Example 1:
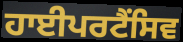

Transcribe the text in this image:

ਹਾਈਪਰਟੈਂਸਿਵ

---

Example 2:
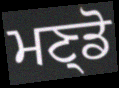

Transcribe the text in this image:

ਮਣ੍ਡੋ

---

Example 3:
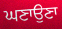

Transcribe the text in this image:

ਘਣਾਉਣਾ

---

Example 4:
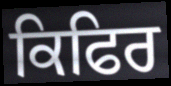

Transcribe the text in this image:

ਕਿਫਿਰ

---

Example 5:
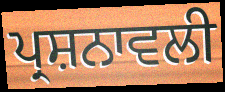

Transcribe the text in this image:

ਪ੍ਰਸ਼ਨਾਵਲੀ